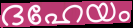
ദഹേയം